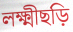
লক্ষ্মীছড়ি